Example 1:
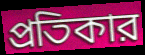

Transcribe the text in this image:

প্রতিকার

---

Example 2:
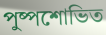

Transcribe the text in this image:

পুষ্পশোভিত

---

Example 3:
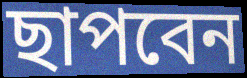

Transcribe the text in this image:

ছাপবেন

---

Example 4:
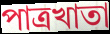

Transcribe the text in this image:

পাত্রখাতা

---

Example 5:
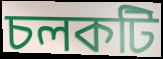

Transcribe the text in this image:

চলকটি